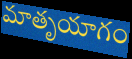
మాతృయాగం